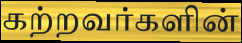
கற்றவர்களின்